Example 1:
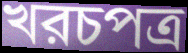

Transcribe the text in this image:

খরচপত্র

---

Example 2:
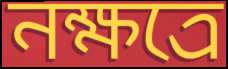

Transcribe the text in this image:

নক্ষত্রে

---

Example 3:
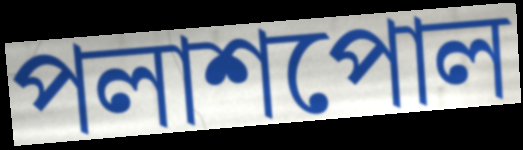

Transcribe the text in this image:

পলাশপোল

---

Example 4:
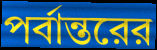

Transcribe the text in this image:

পর্বান্তরের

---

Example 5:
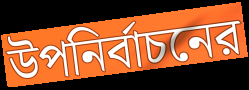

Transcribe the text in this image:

উপনির্বাচনের